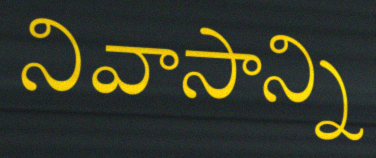
నివాసాన్ని